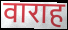
वाराह